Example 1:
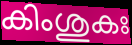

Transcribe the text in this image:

കിംശുകഃ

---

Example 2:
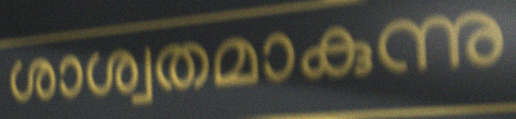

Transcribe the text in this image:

ശാശ്വതമാകുന്നു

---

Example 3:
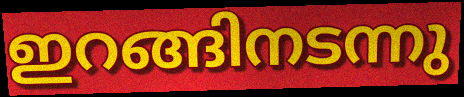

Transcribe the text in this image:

ഇറങ്ങിനടന്നു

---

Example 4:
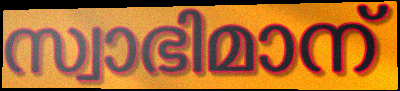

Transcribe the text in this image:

സ്വാഭിമാന്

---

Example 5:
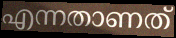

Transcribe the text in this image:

എന്നതാണത്